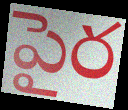
పైర